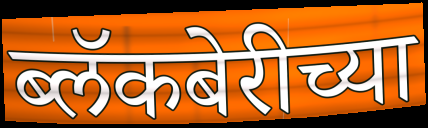
ब्लॅकबेरीच्या